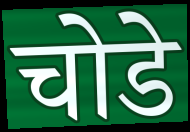
चोडे